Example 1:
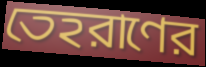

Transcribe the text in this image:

তেহরাণের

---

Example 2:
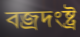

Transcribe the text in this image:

বজ্রদংষ্ট্র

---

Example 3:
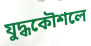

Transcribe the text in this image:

যুদ্ধকৌশলে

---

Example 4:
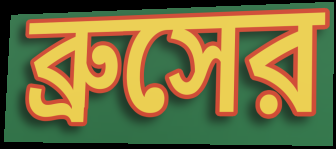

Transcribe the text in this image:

ব্রুসের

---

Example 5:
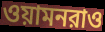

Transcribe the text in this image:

ওয়ামনরাও